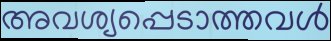
അവശ്യപ്പെടാത്തവൾ